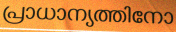
പ്രാധാന്യത്തിനോ